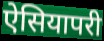
ऐसियापरी